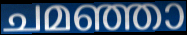
ചമഞ്ഞാ